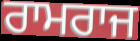
ਰਾਮਰਾਜ